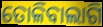
ତୋଳିବାଲାଗି